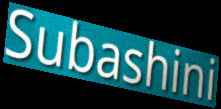
Subashini